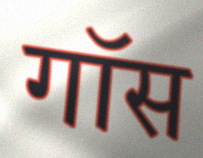
गॉस